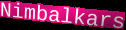
Nimbalkars